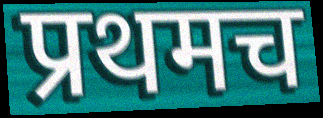
प्रथमच